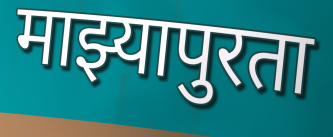
माझ्यापुरता